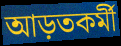
আড়তকর্মী